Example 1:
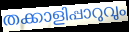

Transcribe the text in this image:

തക്കാളിപ്പാറുവും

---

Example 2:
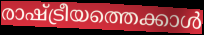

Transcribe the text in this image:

രാഷ്ട്രീയത്തെക്കാൾ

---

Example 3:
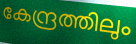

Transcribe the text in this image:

കേന്ദ്രത്തിലും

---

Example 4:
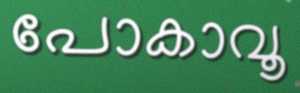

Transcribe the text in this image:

പോകാവൂ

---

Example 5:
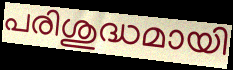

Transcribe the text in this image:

പരിശുദ്ധമായി